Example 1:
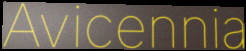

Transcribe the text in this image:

Avicennia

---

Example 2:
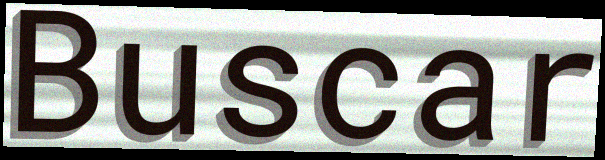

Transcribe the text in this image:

Buscar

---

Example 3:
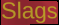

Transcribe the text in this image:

Slags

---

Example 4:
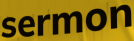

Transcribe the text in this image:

sermon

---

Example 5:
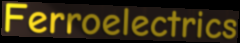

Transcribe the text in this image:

Ferroelectrics